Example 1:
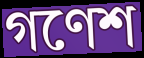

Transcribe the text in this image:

গণেশ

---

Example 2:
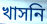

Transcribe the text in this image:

খাসনি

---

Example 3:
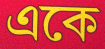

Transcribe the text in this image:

একে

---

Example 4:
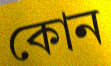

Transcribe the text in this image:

কোন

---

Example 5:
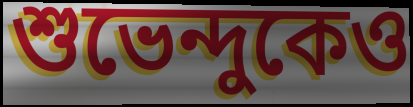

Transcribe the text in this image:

শুভেন্দুকেও